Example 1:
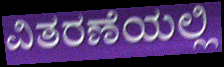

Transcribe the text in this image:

ವಿತರಣೆಯಲ್ಲಿ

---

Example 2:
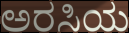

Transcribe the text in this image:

ಅರಸಿಯ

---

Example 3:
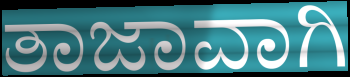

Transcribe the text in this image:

ತಾಜಾವಾಗಿ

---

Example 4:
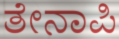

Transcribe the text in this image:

ತೇನಾಪಿ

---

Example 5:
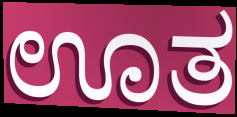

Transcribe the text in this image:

ಊತ